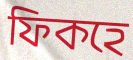
ফিকহে